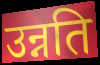
उन्नति